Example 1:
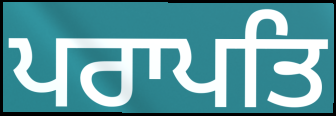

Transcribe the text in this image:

ਪਰਾਪਤਿ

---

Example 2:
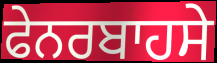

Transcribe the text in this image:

ਫੇਨਰਬਾਹਸੇ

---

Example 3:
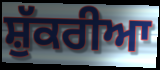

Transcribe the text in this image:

ਸ਼ੁੱਕਰੀਆ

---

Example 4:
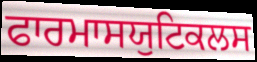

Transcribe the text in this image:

ਫਾਰਮਾਸਯੁਟਿਕਲਸ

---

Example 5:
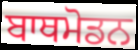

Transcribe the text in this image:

ਬਾਥਮੋਡਨ